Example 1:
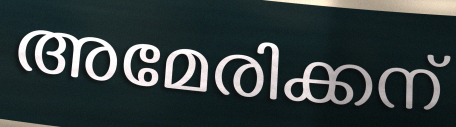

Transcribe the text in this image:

അമേരിക്കന്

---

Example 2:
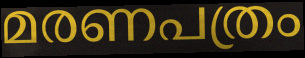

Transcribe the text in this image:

മരണപത്രം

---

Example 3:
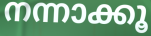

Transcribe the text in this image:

നന്നാക്കൂ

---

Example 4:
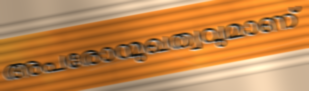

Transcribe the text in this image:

അപരോന്മുഖത്വവുമാണ്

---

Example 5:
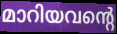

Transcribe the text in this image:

മാറിയവന്റെ